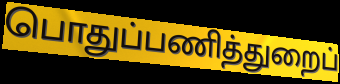
பொதுப்பணித்துறைப்